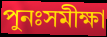
পুনঃসমীক্ষা